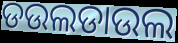
ଡଉଲଡାଉଲ